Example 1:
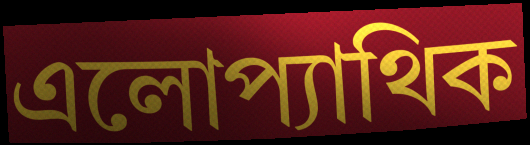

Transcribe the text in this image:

এলোপ্যাথিক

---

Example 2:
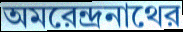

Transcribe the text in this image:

অমরেন্দ্রনাথের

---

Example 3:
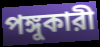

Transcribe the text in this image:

পঙ্গুকারী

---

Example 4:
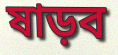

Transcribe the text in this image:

ষাড়ব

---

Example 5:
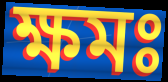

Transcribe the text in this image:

ক্ষমঃ